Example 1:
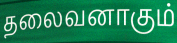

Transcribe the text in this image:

தலைவனாகும்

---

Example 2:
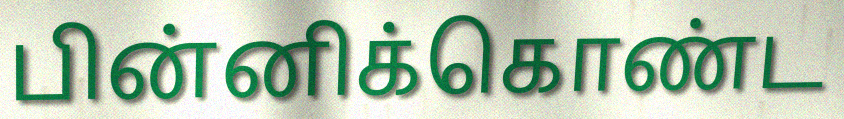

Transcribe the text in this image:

பின்னிக்கொண்ட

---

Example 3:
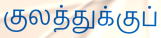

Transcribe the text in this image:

குலத்துக்குப்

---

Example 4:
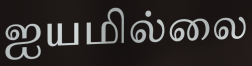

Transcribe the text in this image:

ஐயமில்லை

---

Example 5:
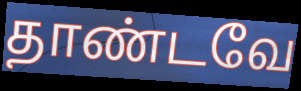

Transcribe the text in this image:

தாண்டவே